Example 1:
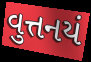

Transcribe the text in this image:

વુત્તનયં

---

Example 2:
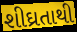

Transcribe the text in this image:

શીઘ્રતાથી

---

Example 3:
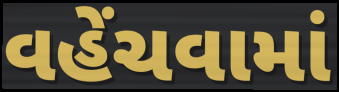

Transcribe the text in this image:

વહેંચવામાં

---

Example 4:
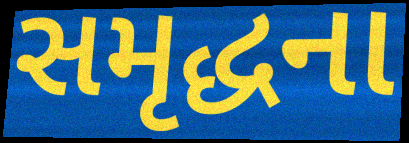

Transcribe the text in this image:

સમૃદ્ધના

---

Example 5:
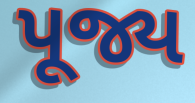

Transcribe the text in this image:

પૂજ્ય